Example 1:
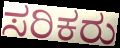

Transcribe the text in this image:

ಸರಿಕರು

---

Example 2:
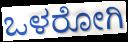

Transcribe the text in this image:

ಒಳರೋಗಿ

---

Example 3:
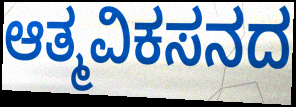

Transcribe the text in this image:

ಆತ್ಮವಿಕಸನದ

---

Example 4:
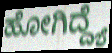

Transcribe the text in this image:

ಹೋಗಿದ್ದ್ಯೆ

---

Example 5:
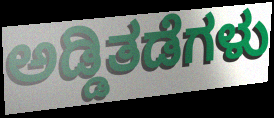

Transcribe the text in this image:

ಅಡ್ಡಿತಡೆಗಳು